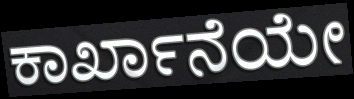
ಕಾರ್ಖಾನೆಯೇ